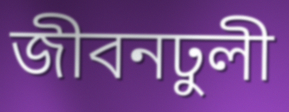
জীবনঢুলী